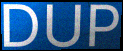
DUP